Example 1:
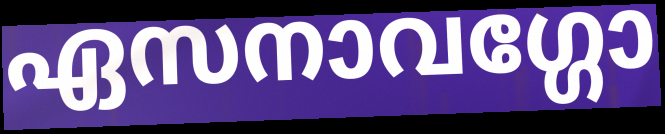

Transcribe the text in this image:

ഏസനാവഗ്ഗോ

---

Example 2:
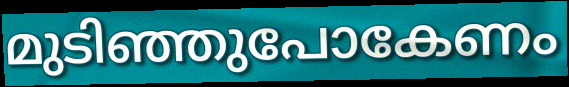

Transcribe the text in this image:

മുടിഞ്ഞുപോകേണം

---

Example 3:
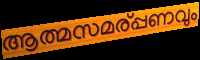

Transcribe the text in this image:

ആത്മസമര്പ്പണവും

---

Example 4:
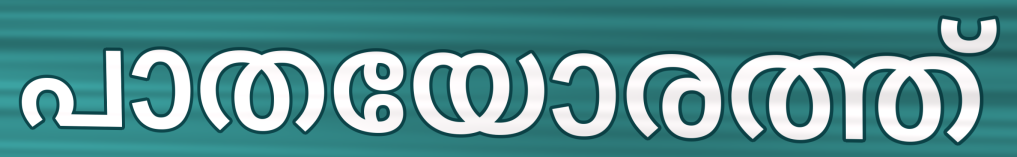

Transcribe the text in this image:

പാതയോരത്ത്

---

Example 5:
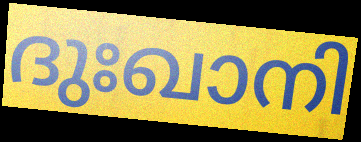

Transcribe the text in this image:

ദുഃഖാനി